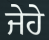
ਜੇਹੇ